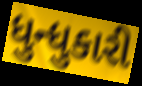
ધુન્ધુકારી